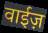
वाईज़